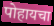
पोहायचा